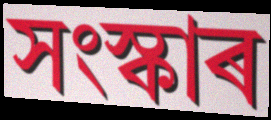
সংস্কাৰ